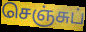
செஞ்சுப்